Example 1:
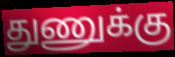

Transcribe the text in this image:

துணுக்கு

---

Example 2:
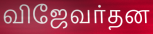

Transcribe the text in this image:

விஜேவர்தன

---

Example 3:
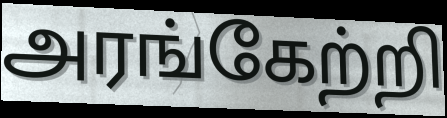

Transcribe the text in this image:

அரங்கேற்றி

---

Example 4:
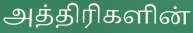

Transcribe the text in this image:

அத்திரிகளின்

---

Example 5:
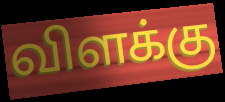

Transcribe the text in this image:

விளக்கு